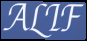
ALIF